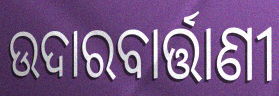
ଉଦାରବାର୍ତ୍ତାଣୀ